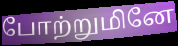
போற்றுமினே